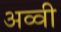
अव्वी